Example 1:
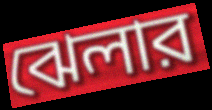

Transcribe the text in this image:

ঝেলার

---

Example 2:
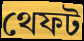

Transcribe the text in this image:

থেফট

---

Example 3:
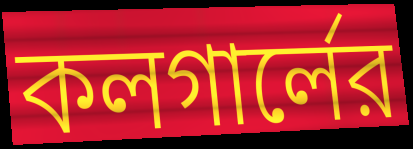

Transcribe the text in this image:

কলগার্লের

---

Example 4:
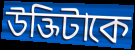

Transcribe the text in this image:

উক্তিটাকে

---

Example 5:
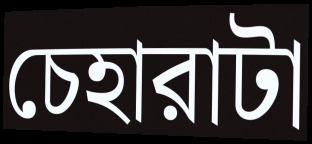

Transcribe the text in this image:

চেহারাটা